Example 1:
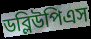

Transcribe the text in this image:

ডব্লিউপিএস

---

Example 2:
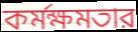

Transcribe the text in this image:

কর্মক্ষমতার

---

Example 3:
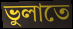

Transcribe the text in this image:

ভুলাতে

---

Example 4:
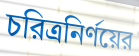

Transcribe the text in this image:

চরিত্রনির্ণয়ের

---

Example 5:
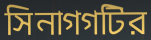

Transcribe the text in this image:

সিনাগগটির